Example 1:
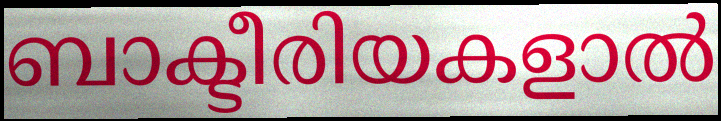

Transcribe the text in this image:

ബാക്ടീരിയകളാൽ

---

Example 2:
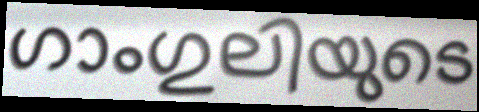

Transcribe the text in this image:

ഗാംഗുലിയുടെ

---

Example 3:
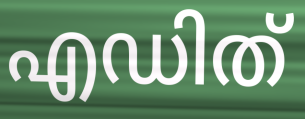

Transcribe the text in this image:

എഡിത്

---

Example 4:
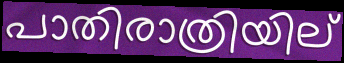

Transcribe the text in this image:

പാതിരാത്രിയില്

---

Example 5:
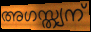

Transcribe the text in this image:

അഗസ്ത്യന്